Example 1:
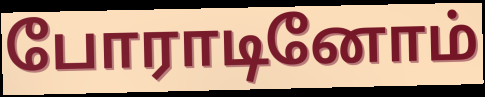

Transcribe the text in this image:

போராடினோம்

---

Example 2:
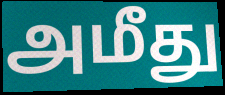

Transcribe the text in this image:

அமீது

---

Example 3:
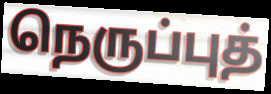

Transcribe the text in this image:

நெருப்புத்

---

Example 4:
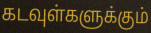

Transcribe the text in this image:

கடவுள்களுக்கும்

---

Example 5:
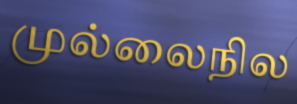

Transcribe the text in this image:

முல்லைநில